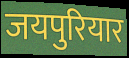
जयपुरियार